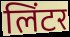
लिंटर